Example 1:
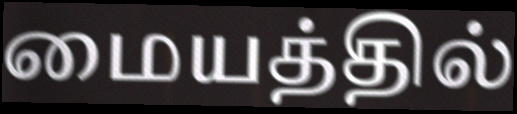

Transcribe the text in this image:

மையத்தில்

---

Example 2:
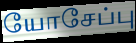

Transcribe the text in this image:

யோசேப்பு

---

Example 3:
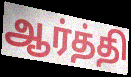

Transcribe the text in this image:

ஆர்த்தி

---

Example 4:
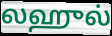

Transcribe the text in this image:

லஹுல்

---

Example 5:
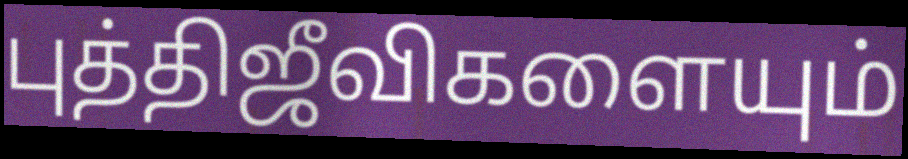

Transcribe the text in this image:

புத்திஜீவிகளையும்